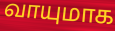
வாயுமாக